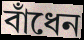
বাঁধেন